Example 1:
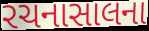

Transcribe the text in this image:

રચનાસાલના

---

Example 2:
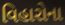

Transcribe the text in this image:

વિહારોના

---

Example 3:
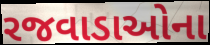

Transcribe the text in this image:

રજવાડાઓના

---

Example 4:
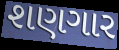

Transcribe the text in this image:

શણગાર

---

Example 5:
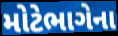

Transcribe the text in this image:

મોટેભાગેના